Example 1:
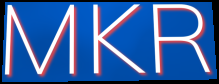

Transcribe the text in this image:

MKR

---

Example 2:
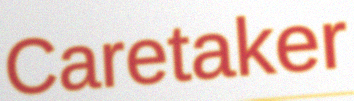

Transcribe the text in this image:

Caretaker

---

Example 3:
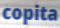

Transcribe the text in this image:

copita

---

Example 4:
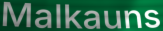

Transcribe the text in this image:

Malkauns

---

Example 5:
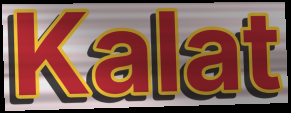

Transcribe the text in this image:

Kalat